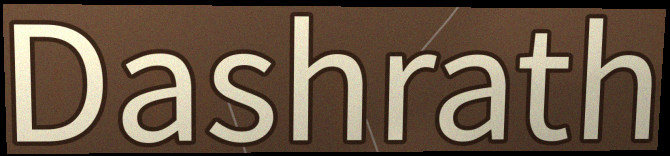
Dashrath